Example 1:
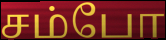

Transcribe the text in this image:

சம்போ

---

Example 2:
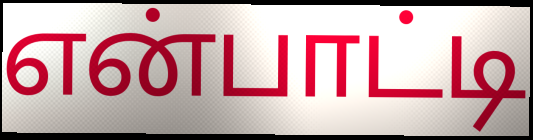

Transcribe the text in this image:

என்பாட்டி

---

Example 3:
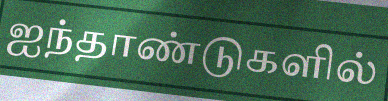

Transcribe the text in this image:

ஐந்தாண்டுகளில்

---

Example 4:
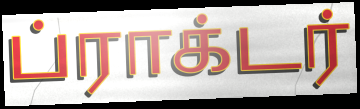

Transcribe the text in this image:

ப்ராக்டர்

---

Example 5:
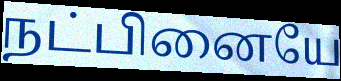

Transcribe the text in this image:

நட்பினையே